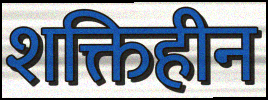
शक्तिहीन